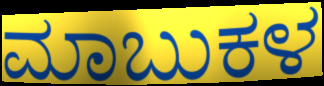
ಮಾಬುಕಳ